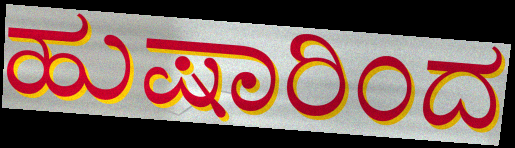
ಹುಷಾರಿಂದ